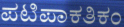
ಪಟಿಪಾಕತಿಕಂ